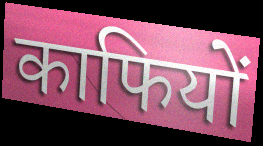
काफियों